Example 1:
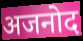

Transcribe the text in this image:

अजनोद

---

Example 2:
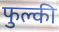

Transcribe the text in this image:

फुल्की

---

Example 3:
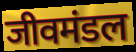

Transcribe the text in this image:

जीवमंडल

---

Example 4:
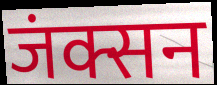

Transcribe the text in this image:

जंक्सन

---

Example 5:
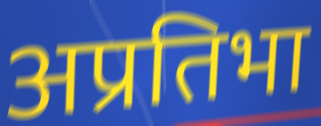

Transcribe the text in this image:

अप्रतिभा